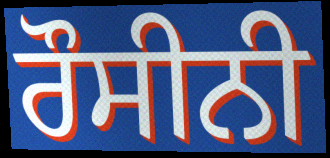
ਰੌਸੀਨੀ